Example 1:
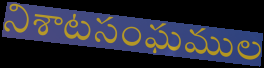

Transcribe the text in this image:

నిశాటసంఘముల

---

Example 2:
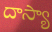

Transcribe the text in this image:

దాస్యా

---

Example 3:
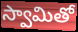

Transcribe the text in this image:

స్వామితో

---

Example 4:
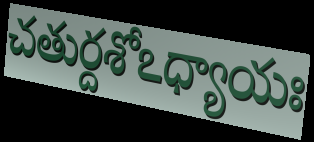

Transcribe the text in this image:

చతుర్దశోఽధ్యాయః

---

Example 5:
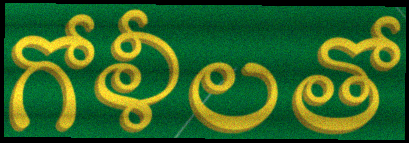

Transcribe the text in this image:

గోళీలతో